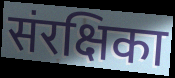
संरक्षिका